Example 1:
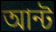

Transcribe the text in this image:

আন্ট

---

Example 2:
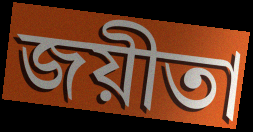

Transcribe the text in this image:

জয়ীতা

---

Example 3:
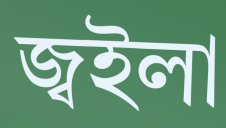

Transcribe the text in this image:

জ্বইলা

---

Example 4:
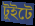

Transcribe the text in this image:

টুইটে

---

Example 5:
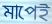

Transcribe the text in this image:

মাপেই